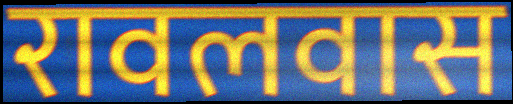
रावलवास